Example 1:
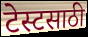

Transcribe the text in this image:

टेस्टसाठी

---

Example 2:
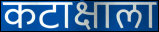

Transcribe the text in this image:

कटाक्षाला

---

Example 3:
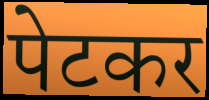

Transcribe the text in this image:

पेटकर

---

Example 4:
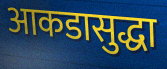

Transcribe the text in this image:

आकडासुद्धा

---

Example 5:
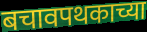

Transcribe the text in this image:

बचावपथकाच्या